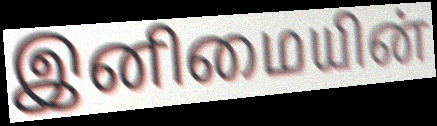
இனிமையின்